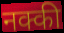
नक्की